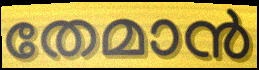
തേമാൻ